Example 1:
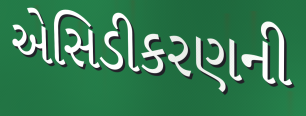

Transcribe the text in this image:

એસિડીકરણની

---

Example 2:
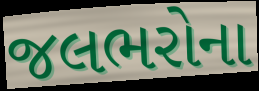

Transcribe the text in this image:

જલભરોના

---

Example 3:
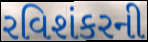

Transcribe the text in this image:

રવિશંકરની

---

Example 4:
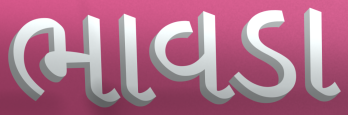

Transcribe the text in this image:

ભાવડા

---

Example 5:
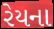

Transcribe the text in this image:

રેયના